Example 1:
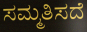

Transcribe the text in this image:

ಸಮ್ಮತಿಸದೆ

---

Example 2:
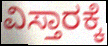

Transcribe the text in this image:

ವಿಸ್ತಾರಕ್ಕೆ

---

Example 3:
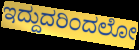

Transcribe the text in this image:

ಇದ್ದುದರಿಂದಲೋ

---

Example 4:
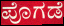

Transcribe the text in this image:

ಪೊಗಡೆ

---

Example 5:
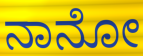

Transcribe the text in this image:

ನಾನೋ